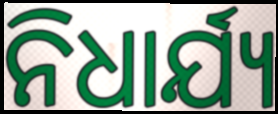
ନିଧାର୍ଯ୍ୟ